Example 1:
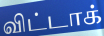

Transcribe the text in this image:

விட்டாக்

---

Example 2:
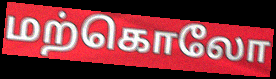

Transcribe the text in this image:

மற்கொலோ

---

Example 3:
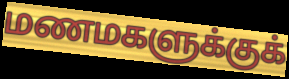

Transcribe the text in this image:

மணமகளுக்குக்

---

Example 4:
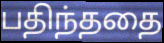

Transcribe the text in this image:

பதிந்ததை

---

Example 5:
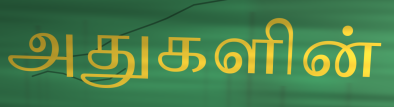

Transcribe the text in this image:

அதுகளின்